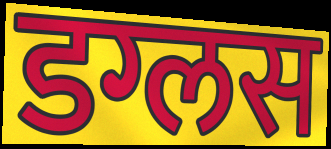
डग्लस